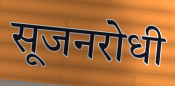
सूजनरोधी